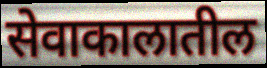
सेवाकालातील